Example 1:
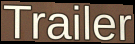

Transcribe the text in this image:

Trailer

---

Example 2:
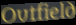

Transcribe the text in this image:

Outfield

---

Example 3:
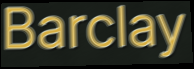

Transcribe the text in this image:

Barclay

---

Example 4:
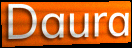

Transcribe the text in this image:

Daura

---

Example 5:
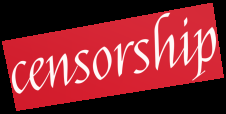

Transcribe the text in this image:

censorship